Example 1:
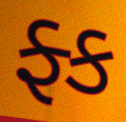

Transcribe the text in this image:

ફ્ક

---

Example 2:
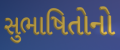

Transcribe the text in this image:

સુભાષિતોનો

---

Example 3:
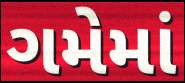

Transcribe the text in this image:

ગમેમાં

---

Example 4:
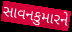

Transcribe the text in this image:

સાવનકુમારને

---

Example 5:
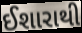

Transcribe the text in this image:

ઈશારાથી